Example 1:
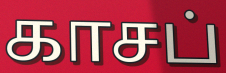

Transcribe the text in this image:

காசப்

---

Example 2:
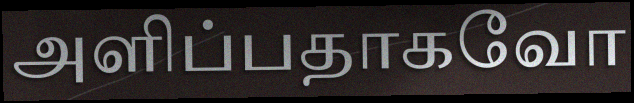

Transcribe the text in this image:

அளிப்பதாகவோ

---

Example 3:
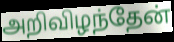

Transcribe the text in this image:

அறிவிழந்தேன்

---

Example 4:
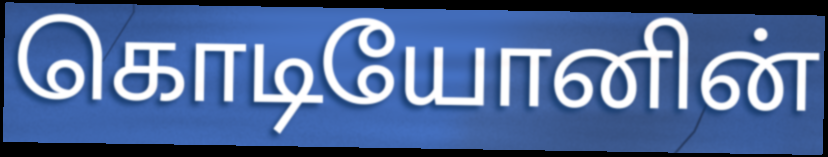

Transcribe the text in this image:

கொடியோனின்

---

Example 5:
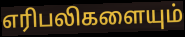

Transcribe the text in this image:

எரிபலிகளையும்